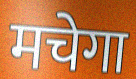
मचेगा